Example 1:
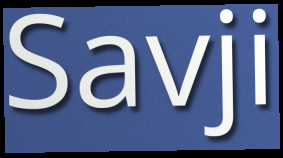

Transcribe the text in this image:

Savji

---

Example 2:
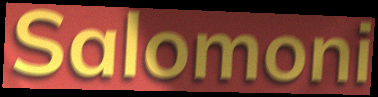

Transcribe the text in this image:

Salomoni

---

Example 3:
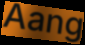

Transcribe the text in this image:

Aang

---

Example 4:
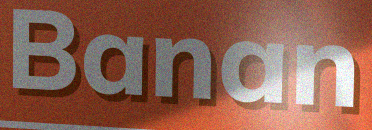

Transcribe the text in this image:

Banan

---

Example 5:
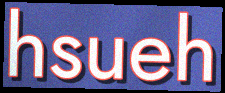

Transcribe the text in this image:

hsueh